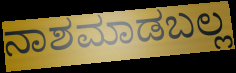
ನಾಶಮಾಡಬಲ್ಲ